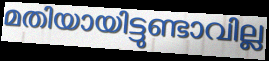
മതിയായിട്ടുണ്ടാവില്ല